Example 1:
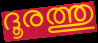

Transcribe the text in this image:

ദൂരത്തു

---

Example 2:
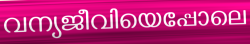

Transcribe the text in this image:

വന്യജീവിയെപ്പോലെ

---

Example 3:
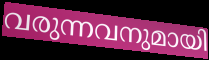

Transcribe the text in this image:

വരുന്നവനുമായി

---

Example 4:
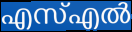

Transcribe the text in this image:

എസ്എൽ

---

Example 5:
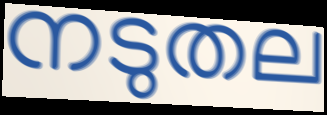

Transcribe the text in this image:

നടുതല